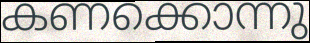
കണക്കൊന്നു